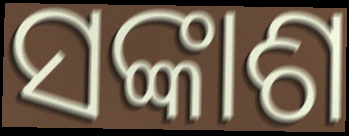
ସଙ୍କାଶ